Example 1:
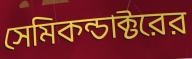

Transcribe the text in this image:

সেমিকন্ডাক্টরের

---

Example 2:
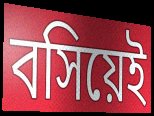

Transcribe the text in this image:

বসিয়েই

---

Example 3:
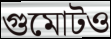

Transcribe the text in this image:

গুমোটও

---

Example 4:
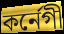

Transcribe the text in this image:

কর্নেগী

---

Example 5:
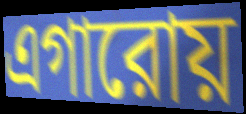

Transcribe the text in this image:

এগারোয়